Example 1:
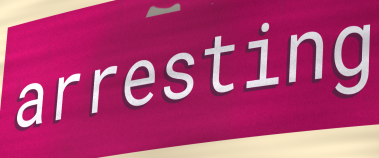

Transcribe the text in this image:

arresting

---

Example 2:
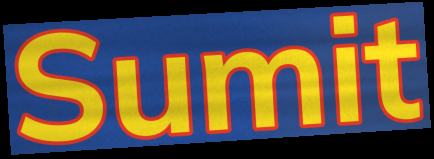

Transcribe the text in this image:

Sumit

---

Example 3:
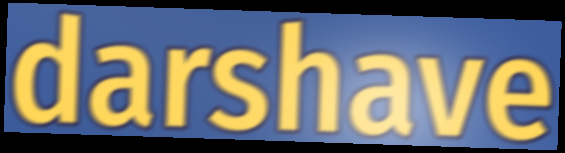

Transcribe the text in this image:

darshave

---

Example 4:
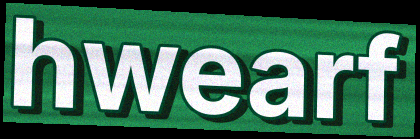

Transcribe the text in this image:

hwearf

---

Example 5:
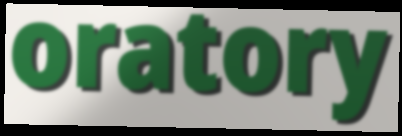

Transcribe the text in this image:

oratory